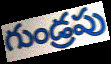
గుండ్రపు